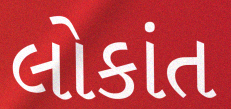
લોકાંત